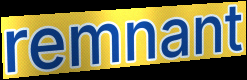
remnant